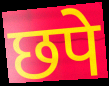
छपे